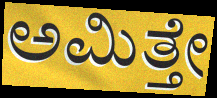
ಅಮಿತ್ತೇ